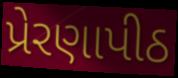
પ્રેરણાપીઠ